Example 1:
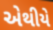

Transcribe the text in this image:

એથીયે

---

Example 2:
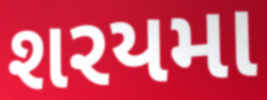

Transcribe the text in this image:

શરયમા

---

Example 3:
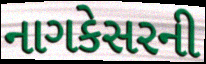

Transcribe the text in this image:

નાગકેસરની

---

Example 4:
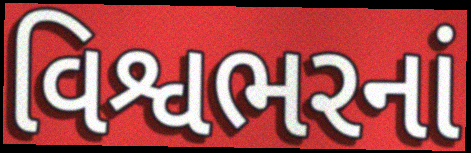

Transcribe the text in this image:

વિશ્વભરનાં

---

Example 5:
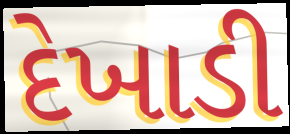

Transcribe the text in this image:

દેખાડી